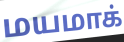
மயமாக்